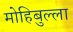
मोहिबुल्ला